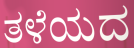
ತಳೆಯದ